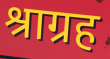
श्राग्रह